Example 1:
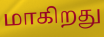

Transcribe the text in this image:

மாகிறது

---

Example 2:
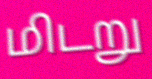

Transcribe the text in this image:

மிடறு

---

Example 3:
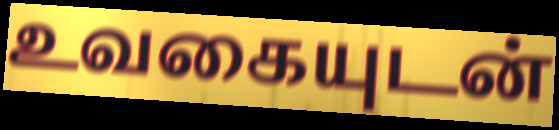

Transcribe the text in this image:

உவகையுடன்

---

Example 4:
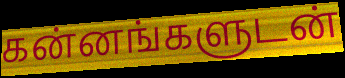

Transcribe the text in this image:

கன்னங்களுடன்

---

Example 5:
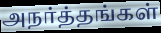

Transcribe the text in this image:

அநர்த்தங்கள்